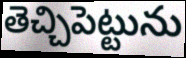
తెచ్చిపెట్టును